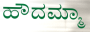
ಹೌದಮ್ಮಾ